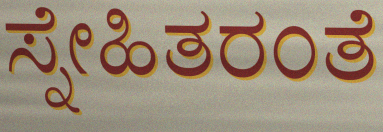
ಸ್ನೇಹಿತರಂತೆ